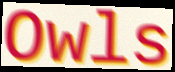
Owls